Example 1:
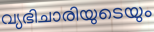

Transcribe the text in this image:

വ്യഭിചാരിയുടെയും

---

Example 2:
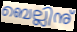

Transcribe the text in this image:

ബെല്ലിനു്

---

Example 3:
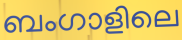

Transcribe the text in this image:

ബംഗാളിലെ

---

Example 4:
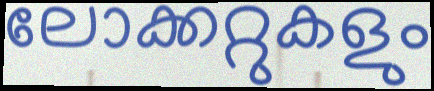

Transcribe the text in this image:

ലോക്കറ്റുകളും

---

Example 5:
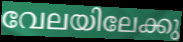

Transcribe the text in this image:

വേലയിലേക്കു